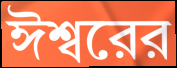
ঈশ্বরের